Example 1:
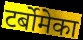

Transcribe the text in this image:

टर्बोमेका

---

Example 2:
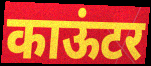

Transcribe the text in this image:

काऊंटर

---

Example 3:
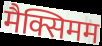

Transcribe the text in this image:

मैक्सिमम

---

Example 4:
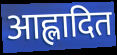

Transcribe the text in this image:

आह्लादित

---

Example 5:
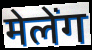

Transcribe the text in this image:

मेलेंग